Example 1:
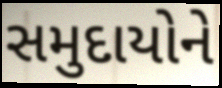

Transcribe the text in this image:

સમુદાયોને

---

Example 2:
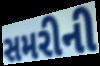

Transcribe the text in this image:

સમરીની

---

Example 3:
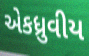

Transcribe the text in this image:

એકધ્રુવીય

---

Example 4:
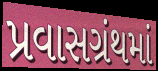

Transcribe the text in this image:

પ્રવાસગ્રંથમાં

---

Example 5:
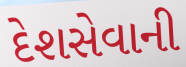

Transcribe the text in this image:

દેશસેવાની